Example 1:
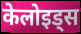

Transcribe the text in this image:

केलोइड्स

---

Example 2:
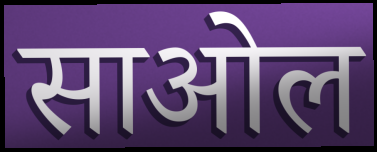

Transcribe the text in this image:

साओल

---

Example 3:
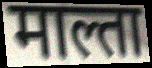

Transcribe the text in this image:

माल्ता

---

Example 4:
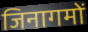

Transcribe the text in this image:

जिनागमों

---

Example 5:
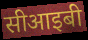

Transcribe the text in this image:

सीआइबी